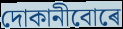
দোকানীবোৰে